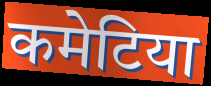
कमेटिया